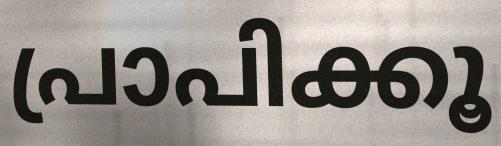
പ്രാപിക്കൂ